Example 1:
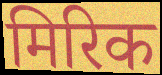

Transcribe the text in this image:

मिरिक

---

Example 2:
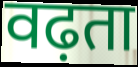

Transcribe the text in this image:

वढ़ता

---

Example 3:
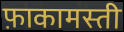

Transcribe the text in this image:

फ़ाकामस्ती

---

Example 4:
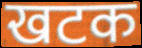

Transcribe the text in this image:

खटक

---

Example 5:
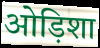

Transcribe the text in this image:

ओड़िशा